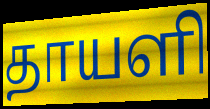
தாயளி